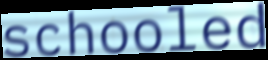
schooled